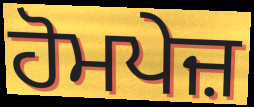
ਹੋਮਪੇਜ਼